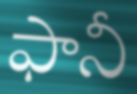
ఫానీ